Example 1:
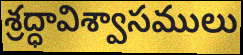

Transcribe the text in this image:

శ్రద్ధావిశ్వాసములు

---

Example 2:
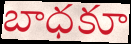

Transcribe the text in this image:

బాధకూ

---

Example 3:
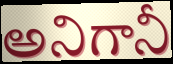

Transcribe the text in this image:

అనిగానీ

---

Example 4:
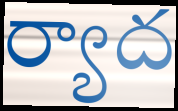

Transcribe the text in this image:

ర్యాద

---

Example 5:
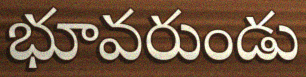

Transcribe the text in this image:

భూవరుండు